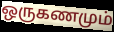
ஒருகணமும்